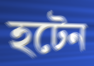
হটেন